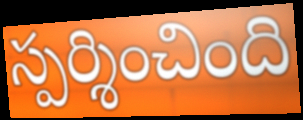
స్పర్శించింది